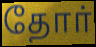
தோர்